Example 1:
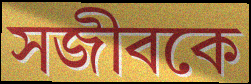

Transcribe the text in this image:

সজীবকে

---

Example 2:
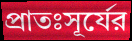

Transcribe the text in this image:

প্রাতঃসূর্যের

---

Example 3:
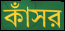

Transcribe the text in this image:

কাঁসর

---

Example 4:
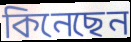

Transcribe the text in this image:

কিনেছেন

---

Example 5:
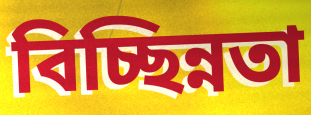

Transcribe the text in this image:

বিচ্ছিন্নতা